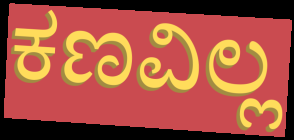
ಕಣವಿಲ್ಲ